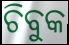
ଚିବୁକ